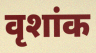
वृशांक